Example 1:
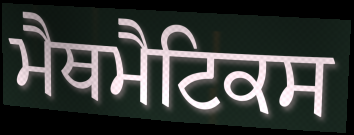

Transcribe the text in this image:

ਮੈਥਮੈਟਿਕਸ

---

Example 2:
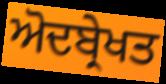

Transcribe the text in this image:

ਅੋਦਬ੍ਰੇਖਤ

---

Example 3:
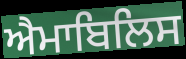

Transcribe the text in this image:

ਐਮਾਬਿਲਿਸ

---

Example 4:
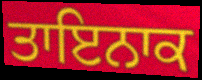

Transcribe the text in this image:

ਤਾਇਨਾਕ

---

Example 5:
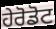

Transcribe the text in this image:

ਹੇਰੋਡੋਟ